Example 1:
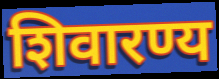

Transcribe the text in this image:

शिवारण्य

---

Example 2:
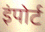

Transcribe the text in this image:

इंपोर्ट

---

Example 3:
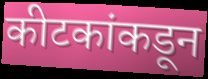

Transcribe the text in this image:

कीटकांकडून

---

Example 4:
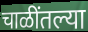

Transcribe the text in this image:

चाळींतल्या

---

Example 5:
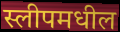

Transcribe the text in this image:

स्लीपमधील